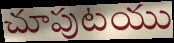
చూపుటయు